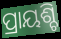
ପ୍ରାୟଶ୍ଚି